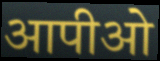
आपीओ